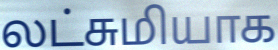
லட்சுமியாக